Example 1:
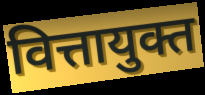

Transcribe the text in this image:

वित्तायुक्त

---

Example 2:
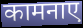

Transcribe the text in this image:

कामनाए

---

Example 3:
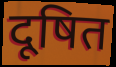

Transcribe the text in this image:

दूषित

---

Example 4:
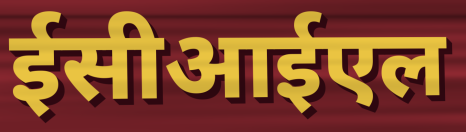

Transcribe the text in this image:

ईसीआईएल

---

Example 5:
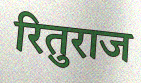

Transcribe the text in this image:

रितुराज